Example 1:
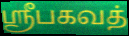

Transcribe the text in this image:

ஸ்ரீபகவத்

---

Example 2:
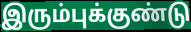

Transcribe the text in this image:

இரும்புக்குண்டு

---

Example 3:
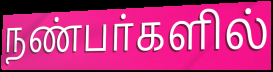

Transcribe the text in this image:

நண்பர்களில்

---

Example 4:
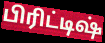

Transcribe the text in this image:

பிரிட்டிஷ்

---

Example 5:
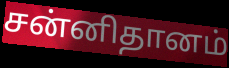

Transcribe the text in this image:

சன்னிதானம்